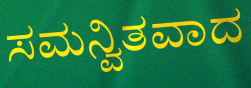
ಸಮನ್ವಿತವಾದ